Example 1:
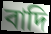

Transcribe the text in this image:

বাদি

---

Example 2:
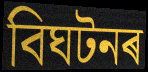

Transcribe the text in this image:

বিঘটনৰ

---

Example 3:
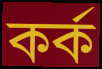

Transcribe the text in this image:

কৰ্ক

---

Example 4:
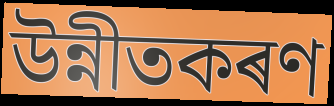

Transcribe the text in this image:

উন্নীতকৰণ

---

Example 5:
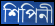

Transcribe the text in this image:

শিপিনী